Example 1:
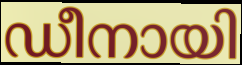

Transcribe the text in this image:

ഡീനായി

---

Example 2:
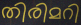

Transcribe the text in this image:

തിരിമറി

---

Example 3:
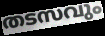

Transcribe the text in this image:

തടസവും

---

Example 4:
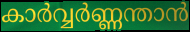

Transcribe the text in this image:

കാർവ്വർണ്ണന്താൻ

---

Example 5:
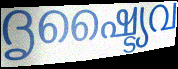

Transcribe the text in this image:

ദൃഷ്ട്യൈവ